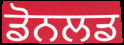
ਡੋਨਲਡ